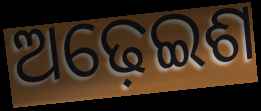
ଅଢ଼େଇଶ